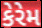
કેરેમ